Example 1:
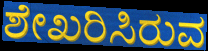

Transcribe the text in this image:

ಶೇಖರಿಸಿರುವ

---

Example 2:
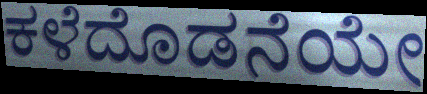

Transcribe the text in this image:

ಕಳೆದೊಡನೆಯೇ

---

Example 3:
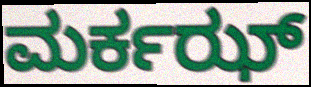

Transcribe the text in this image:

ಮರ್ಕಝ್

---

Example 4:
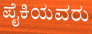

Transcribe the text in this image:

ಪೈಕಿಯವರು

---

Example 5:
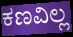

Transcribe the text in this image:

ಕಣವಿಲ್ಲ